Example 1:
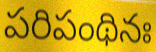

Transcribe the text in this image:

పరిపంథినః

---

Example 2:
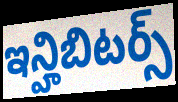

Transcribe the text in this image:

ఇన్హిబిటర్స్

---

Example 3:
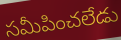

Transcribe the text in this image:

సమీపించలేడు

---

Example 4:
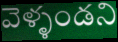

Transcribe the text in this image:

వెళ్ళండని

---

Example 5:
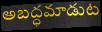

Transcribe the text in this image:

అబద్ధమాడుట